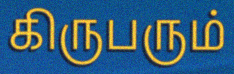
கிருபரும்